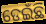
ଡେଇଁଛି